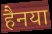
हैनया